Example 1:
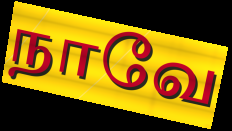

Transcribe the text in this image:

நாவே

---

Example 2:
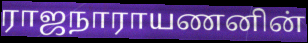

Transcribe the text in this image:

ராஜநாராயணனின்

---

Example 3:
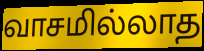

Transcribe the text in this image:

வாசமில்லாத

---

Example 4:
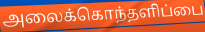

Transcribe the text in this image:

அலைக்கொந்தளிப்பை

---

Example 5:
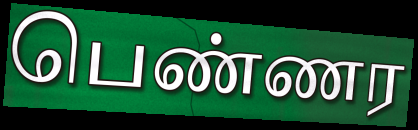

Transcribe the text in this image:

பெண்ணர